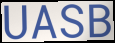
UASB